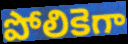
పోలికెగా